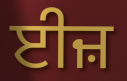
ਈਜ਼